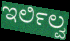
ಇರ್ಲಿಲ್ವ